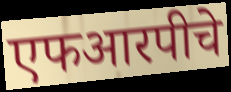
एफआरपीचे